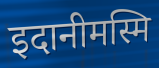
इदानीमस्मि